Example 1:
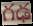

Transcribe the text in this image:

గఢ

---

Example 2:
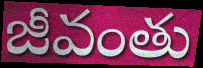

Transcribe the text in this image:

జీవంతు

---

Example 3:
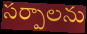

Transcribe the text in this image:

సర్పాలను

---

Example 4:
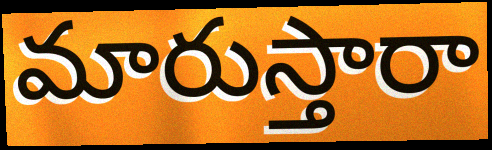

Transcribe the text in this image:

మారుస్తారా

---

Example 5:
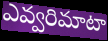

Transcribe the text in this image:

ఎవ్వరిమాటా